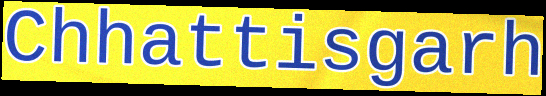
Chhattisgarh